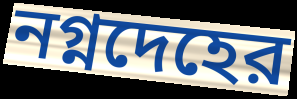
নগ্নদেহের